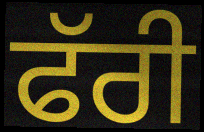
ਫੱਰੀ